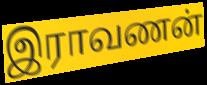
இராவணன்